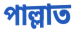
পাল্লাত